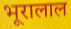
भूरालाल